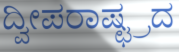
ದ್ವೀಪರಾಷ್ಟ್ರದ